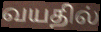
வயதில்